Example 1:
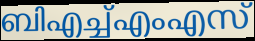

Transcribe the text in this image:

ബിഎച്ച്എംഎസ്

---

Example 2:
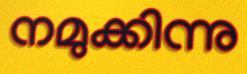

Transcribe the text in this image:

നമുക്കിന്നു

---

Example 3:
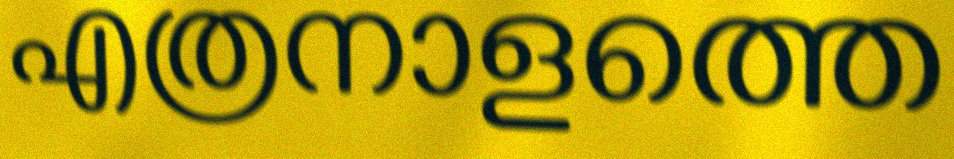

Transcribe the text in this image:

എത്രനാളത്തെ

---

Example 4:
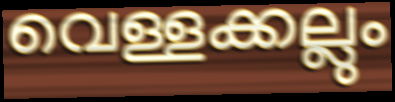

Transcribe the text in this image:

വെള്ളക്കല്ലും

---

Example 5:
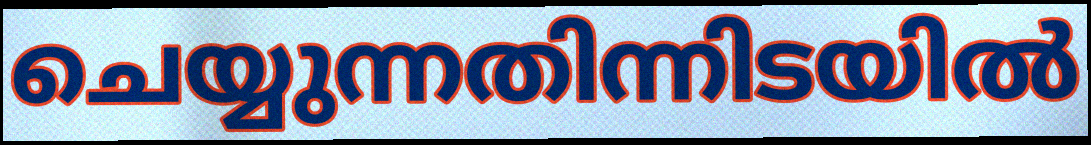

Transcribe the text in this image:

ചെയ്യുന്നതിന്നിടയിൽ